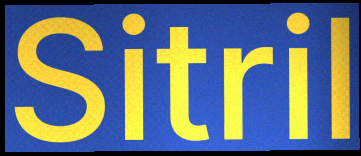
Sitril